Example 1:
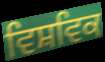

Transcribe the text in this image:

ਵਿਸ਼ਵਿਕ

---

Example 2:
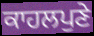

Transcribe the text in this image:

ਕਾਹਲਪੁਣੇ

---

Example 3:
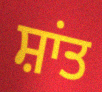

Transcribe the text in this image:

ਸ਼ਾਂਤ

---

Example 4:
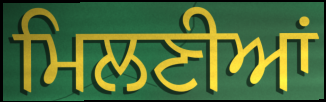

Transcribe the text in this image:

ਮਿਲਣੀਆਂ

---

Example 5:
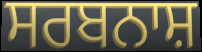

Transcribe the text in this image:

ਸਰਬਨਾਸ਼